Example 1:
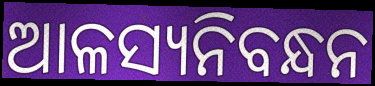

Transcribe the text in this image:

ଆଳସ୍ୟନିବନ୍ଧନ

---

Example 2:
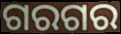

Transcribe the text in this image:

ଗରଗର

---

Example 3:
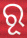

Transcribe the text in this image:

ରୂ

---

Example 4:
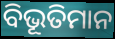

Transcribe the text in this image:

ବିଭୂତିମାନ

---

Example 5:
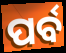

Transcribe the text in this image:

ପର୍ବ